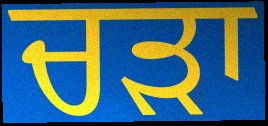
ਚੜਾ